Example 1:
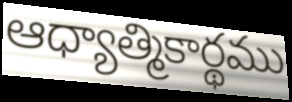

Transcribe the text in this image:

ఆధ్యాత్మికార్థము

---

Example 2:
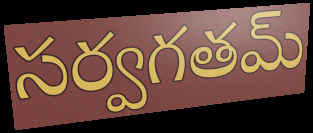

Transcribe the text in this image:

సర్వగతమ్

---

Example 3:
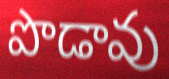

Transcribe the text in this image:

పొడావు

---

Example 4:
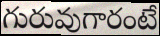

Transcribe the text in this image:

గురువుగారంటే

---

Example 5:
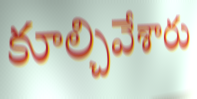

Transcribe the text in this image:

కూల్చివేశారు